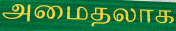
அமைதலாக